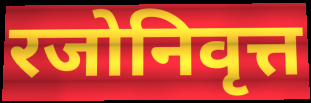
रजोनिवृत्त